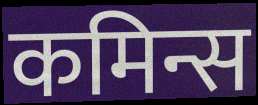
कमिन्स